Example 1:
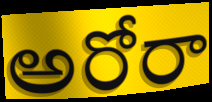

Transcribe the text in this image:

అరోరా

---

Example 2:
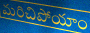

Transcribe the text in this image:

మరిచిపోయాం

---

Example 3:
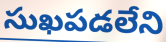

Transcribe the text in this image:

సుఖపడలేని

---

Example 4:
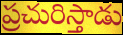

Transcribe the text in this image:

ప్రచురిస్తాడు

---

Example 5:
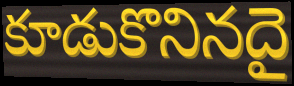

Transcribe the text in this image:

కూడుకొనినదై